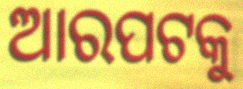
ଆରପଟକୁ